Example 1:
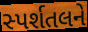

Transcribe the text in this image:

સ્પર્શતલને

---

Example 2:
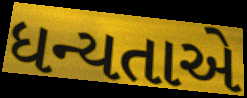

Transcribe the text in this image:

ધન્યતાએ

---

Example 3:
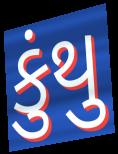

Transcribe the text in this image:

કુંથુ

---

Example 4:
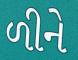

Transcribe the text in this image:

ળીને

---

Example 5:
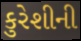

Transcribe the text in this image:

કુરેશીની